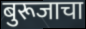
बुरूजाचा